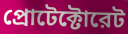
প্রোটেক্টোরেট